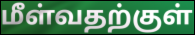
மீள்வதற்குள்